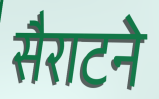
सैराटने